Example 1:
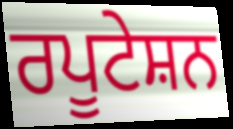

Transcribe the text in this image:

ਰਪੂਟੇਸ਼ਨ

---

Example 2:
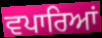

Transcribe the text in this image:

ਵਪਾਰਿਆਂ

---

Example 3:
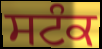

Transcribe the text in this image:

ਸਟੰਕ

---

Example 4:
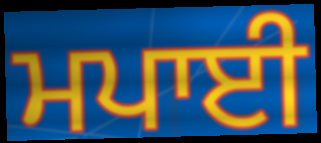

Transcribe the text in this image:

ਮਪਾਈ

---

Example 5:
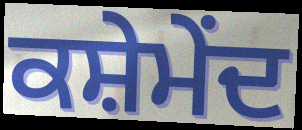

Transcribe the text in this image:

ਕਸ਼ੇਮੇਂਦ